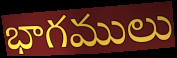
భాగములు